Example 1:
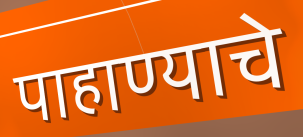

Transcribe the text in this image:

पाहाण्याचे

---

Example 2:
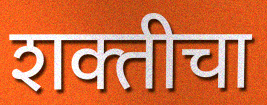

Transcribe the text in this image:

शक्‍तीचा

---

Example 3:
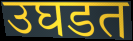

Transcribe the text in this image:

उघडत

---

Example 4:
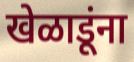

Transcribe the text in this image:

खेळाडूंना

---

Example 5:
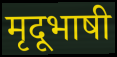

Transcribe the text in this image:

मृदूभाषी